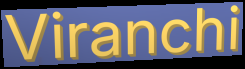
Viranchi